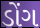
ડોંગ